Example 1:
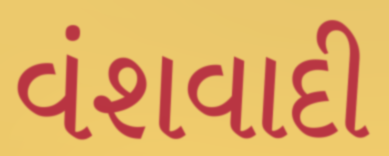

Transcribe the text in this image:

વંશવાદી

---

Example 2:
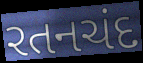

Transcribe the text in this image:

રતનચંદ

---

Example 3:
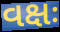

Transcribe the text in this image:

વક્ષઃ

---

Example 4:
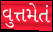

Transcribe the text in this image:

વુત્તમેતં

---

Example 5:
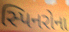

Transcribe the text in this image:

સ્પિનરોના